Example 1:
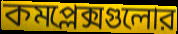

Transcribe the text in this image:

কমপ্লেক্সগুলোর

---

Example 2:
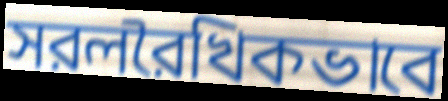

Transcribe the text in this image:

সরলরৈখিকভাবে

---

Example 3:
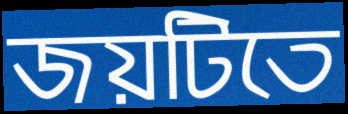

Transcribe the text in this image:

জয়টিতে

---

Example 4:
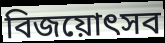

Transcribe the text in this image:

বিজয়োৎসব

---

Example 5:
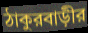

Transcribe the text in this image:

ঠাকুরবাড়ীর